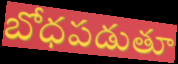
బోధపడుతూ